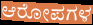
ಆರೋಪಗಳ